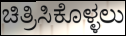
ಚಿತ್ರಿಸಿಕೊಳ್ಳಲು